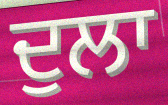
ਦੁਲਾ